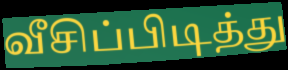
வீசிப்பிடித்து